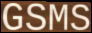
GSMS